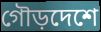
গৌড়দেশে